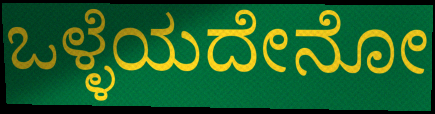
ಒಳ್ಳೆಯದೇನೋ